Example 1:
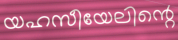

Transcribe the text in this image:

യഹസീയേലിന്റെ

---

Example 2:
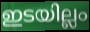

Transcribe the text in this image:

ഇടയില്ലം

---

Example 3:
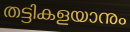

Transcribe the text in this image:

തട്ടികളയാനും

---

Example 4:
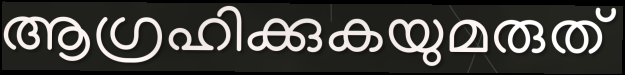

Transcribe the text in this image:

ആഗ്രഹിക്കുകയുമരുത്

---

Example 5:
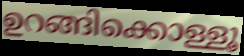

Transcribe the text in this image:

ഉറങ്ങിക്കൊള്ളൂ